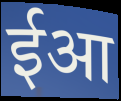
ईआ